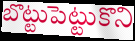
బొట్టుపెట్టుకొని